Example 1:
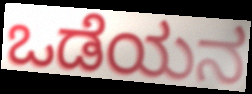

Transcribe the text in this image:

ಒಡೆಯನ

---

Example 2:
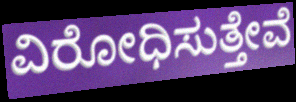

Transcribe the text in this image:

ವಿರೋಧಿಸುತ್ತೇವೆ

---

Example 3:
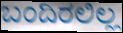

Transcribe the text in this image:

ಬಂದಿರಲಿಲ್ಲ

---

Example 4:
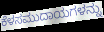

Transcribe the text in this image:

ಕೆಳಸಮುದಾಯಗಳನ್ನು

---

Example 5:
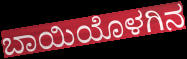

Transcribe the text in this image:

ಬಾಯಿಯೊಳಗಿನ